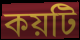
কয়টি